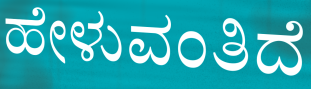
ಹೇಳುವಂತಿದೆ